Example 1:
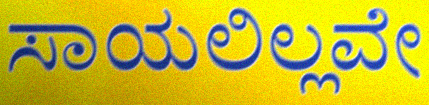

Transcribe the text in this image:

ಸಾಯಲಿಲ್ಲವೇ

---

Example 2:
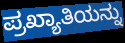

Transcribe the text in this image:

ಪ್ರಖ್ಯಾತಿಯನ್ನು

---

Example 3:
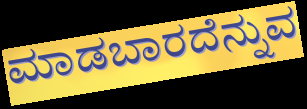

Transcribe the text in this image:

ಮಾಡಬಾರದೆನ್ನುವ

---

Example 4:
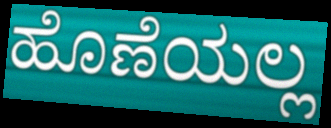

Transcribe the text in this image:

ಹೊಣೆಯಲ್ಲ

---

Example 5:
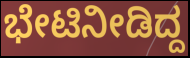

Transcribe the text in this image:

ಭೇಟಿನೀಡಿದ್ದ